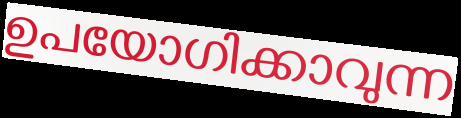
ഉപയോഗിക്കാവുന്ന